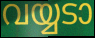
വയ്യടാ